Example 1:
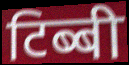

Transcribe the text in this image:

टिब्बी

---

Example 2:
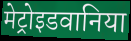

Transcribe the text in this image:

मेट्रोइडवानिया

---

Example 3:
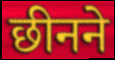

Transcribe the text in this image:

छीनने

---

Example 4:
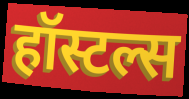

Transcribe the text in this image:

हॉस्टल्स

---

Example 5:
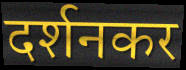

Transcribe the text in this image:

दर्शनकर